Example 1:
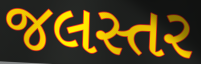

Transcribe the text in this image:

જલસ્તર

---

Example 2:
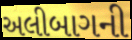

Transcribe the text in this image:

અલીબાગની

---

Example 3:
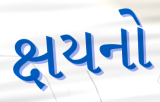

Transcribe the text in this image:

ક્ષયનો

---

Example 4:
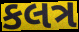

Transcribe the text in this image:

કલત્ર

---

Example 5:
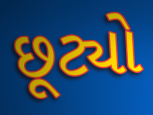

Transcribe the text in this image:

છૂટ્યો